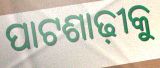
ପାଟଶାଢ଼ୀକୁ